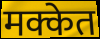
मक्केत